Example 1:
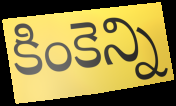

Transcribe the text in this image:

కింకెన్ని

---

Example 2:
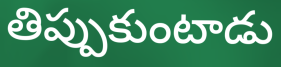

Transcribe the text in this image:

తిప్పుకుంటాడు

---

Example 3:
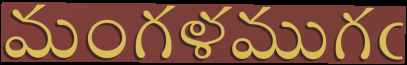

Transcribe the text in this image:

మంగళముగఁ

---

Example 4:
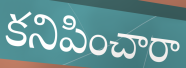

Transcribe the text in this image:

కనిపించారా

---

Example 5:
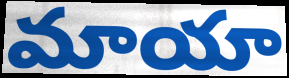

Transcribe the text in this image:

మాయా